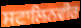
ਸਟਾਲਿਨਵੀਰ